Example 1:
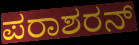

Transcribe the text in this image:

ಪರಾಶರನ್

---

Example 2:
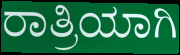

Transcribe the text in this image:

ರಾತ್ರಿಯಾಗಿ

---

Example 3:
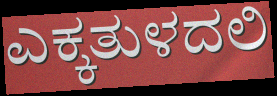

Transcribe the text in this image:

ಎಕ್ಕತುಳದಲಿ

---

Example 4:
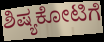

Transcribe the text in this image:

ಶಿಷ್ಯಕೋಟಿಗೆ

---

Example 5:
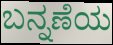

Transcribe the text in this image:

ಬನ್ನಣೆಯ